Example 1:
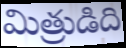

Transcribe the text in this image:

మిత్రుడిది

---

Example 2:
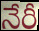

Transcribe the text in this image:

నేరీ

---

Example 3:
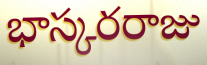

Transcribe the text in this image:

భాస్కరరాజు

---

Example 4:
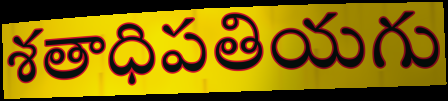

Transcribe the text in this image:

శతాధిపతియగు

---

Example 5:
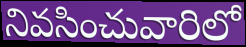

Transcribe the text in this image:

నివసించువారిలో